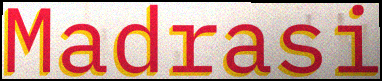
Madrasi